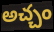
అచ్చం